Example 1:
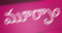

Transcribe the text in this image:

మూర్ఛాం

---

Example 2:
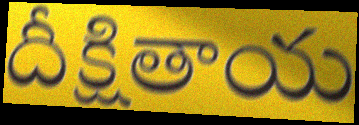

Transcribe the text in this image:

దీక్షితాయ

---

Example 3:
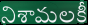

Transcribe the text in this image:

నిశామలకీ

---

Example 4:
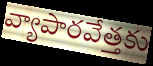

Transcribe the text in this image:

వ్యాపారవేత్తకు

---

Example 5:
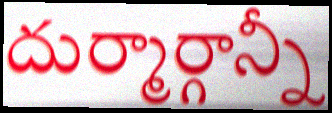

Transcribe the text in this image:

దుర్మార్గాన్నీ